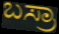
ಬಸ್ರಾ